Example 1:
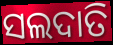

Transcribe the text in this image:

ସଲଦାତି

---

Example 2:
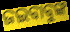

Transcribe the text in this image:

ଜଇବାବୁଙ୍କ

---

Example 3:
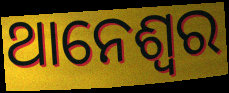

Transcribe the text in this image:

ଥାନେଶ୍ୱର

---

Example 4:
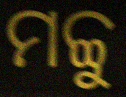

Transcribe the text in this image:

ମଚ୍ଚୁ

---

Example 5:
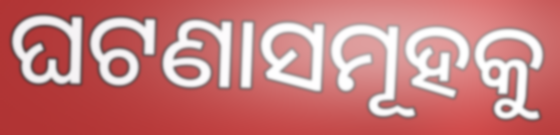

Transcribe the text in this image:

ଘଟଣାସମୂହକୁ